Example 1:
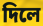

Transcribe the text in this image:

দিলে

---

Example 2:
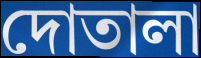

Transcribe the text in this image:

দোতালা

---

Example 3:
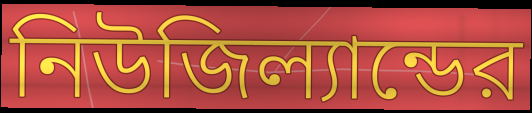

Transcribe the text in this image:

নিউজিল্যান্ডের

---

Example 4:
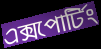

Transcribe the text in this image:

এক্সপোর্টিং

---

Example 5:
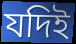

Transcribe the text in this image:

যদিই